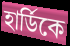
হার্ডিকে